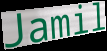
Jamil